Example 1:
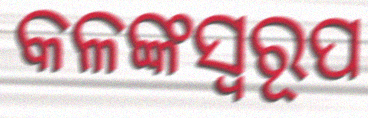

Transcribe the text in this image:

କଳଙ୍କସ୍ୱରୂପ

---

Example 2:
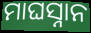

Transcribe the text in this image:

ମାଘସ୍ନାନ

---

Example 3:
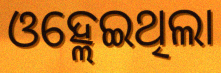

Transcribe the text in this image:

ଓହ୍ଲେଇଥିଲା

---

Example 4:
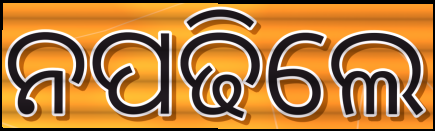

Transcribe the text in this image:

ନପଢିଲେ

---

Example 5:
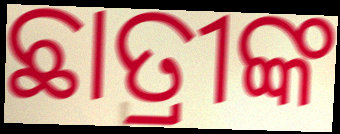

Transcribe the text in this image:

ଛାତ୍ରୀଙ୍କ